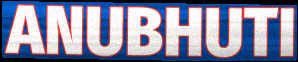
ANUBHUTI